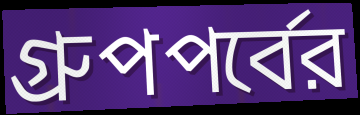
গ্রুপপর্বের